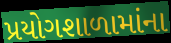
પ્રયોગશાળામાંના